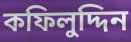
কফিলুদ্দিন